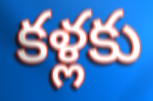
కళ్లకు